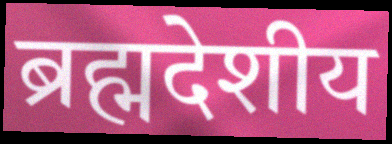
ब्रह्मदेशीय